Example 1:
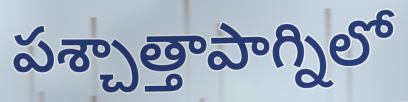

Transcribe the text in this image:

పశ్చాత్తాపాగ్నిలో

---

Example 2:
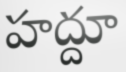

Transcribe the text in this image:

హద్దూ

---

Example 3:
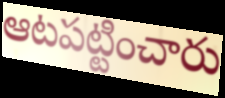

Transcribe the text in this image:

ఆటపట్టించారు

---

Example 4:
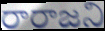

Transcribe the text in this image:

రారాజని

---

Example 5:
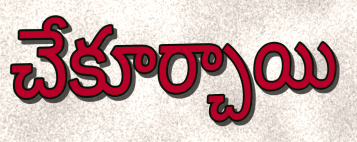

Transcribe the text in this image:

చేకూర్చాయి